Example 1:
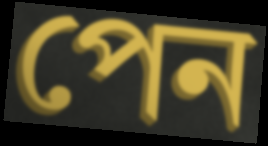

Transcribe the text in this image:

পেন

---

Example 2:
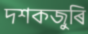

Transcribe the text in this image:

দশকজুৰি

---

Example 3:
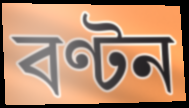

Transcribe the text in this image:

বণ্টন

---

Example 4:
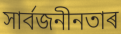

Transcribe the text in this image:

সাৰ্বজনীনতাৰ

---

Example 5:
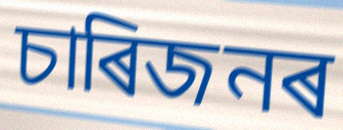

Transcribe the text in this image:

চাৰিজনৰ